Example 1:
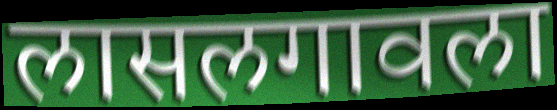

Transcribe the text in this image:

लासलगावला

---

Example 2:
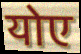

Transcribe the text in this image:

योए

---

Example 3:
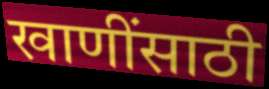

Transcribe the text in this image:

खाणींसाठी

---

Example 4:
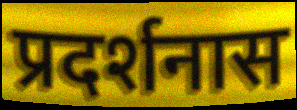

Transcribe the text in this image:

प्रदर्शनास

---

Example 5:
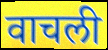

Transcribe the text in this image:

वाचली